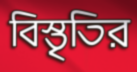
বিস্তৃতির